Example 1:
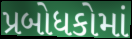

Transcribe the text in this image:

પ્રબોધકોમાં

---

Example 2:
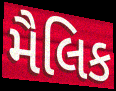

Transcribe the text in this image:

મૈલિક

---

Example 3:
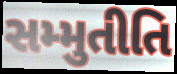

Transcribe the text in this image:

સમ્મુતીતિ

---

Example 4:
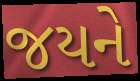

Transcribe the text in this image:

જયને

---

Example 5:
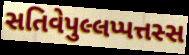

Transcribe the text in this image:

સતિવેપુલ્લપ્પત્તસ્સ